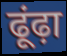
ढूंढ़ा